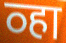
व्हा